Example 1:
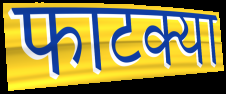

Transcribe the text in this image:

फाटक्या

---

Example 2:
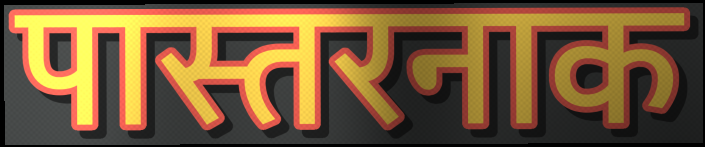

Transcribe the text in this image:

पास्तरनाक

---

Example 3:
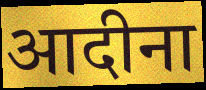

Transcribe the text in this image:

आदीना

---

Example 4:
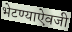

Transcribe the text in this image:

भेटण्याऐवजी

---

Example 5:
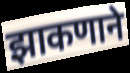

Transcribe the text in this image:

झाकणाने